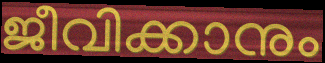
ജീവിക്കാനും